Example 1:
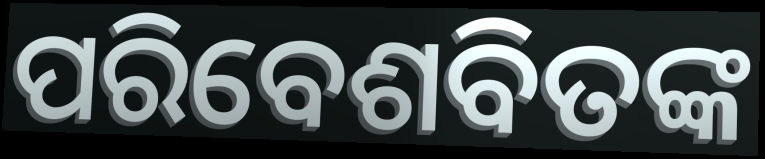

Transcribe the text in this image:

ପରିବେଶବିତଙ୍କ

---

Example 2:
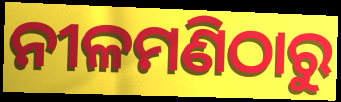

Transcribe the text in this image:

ନୀଳମଣିଠାରୁ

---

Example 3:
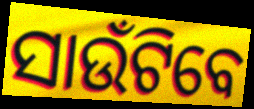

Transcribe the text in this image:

ସାଉଁଟିବେ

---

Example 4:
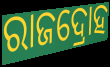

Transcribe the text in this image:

ରାଜଦ୍ରୋହ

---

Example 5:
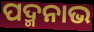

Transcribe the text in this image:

ପଦ୍ମନାଭ